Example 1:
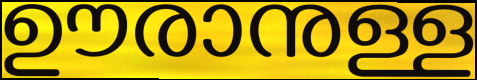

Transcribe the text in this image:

ഊരാനുള്ള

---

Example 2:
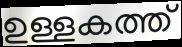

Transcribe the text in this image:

ഉള്ളകത്ത്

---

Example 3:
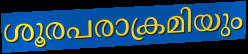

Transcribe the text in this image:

ശൂരപരാക്രമിയും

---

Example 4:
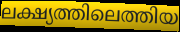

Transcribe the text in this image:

ലക്ഷ്യത്തിലെത്തിയ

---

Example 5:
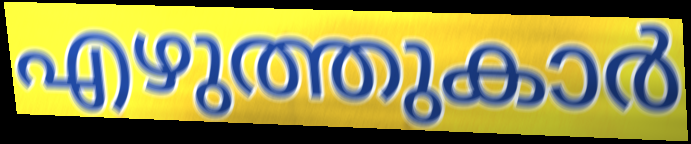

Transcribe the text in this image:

എഴുത്തുകാർ